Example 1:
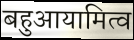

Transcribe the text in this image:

बहुआयामित्व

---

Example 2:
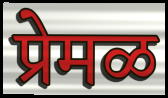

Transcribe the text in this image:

प्रेमळ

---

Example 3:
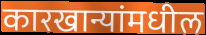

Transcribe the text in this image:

कारखान्यांमधील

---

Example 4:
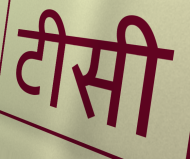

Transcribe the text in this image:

टीसी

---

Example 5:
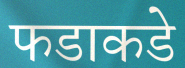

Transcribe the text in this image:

फडाकडे